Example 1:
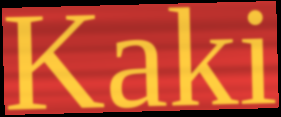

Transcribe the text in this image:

Kaki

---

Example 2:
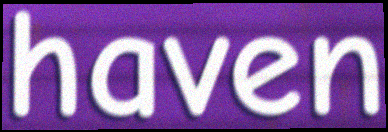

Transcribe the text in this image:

haven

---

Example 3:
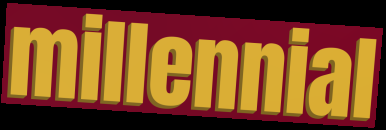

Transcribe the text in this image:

millennial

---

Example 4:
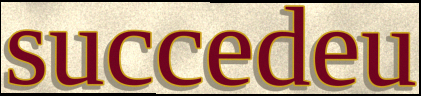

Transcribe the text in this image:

succedeu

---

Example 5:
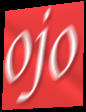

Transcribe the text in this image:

ojo